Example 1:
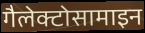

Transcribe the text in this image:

गैलेक्टोसामाइन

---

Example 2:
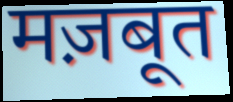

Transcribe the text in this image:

मज़बूत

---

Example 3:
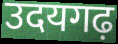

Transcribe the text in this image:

उदयगढ़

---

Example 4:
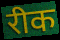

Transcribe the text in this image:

रीक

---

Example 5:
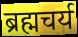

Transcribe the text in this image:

ब्रह्मचर्य